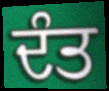
ਦੰਤ